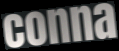
conna